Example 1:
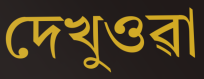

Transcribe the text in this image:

দেখুওৱা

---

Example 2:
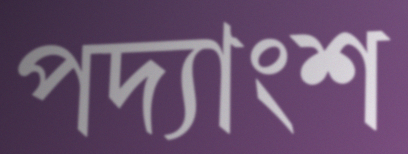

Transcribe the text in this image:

পদ্যাংশ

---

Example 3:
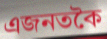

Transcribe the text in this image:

এজনতকৈ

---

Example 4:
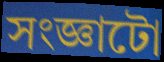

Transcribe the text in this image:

সংজ্ঞাটো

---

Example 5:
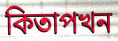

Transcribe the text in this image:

কিতাপখন